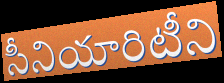
సీనియారిటీని